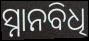
ସ୍ନାନବିଧି